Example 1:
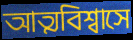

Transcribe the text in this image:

আত্মবিশ্বাসে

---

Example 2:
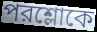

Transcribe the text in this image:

পরশ্লোকে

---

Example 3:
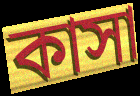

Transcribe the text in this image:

কাসা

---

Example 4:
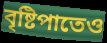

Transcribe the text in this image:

বৃষ্টিপাতেও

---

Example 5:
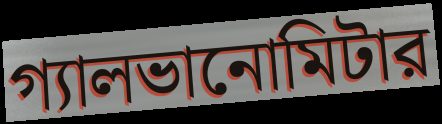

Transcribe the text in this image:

গ্যালভানোমিটার